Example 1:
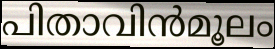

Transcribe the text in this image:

പിതാവിൻമൂലം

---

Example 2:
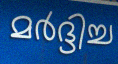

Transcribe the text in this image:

മർദ്ദിച്ച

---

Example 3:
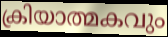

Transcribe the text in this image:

ക്രിയാത്മകവും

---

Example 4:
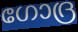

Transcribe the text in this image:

ഗോദ്ര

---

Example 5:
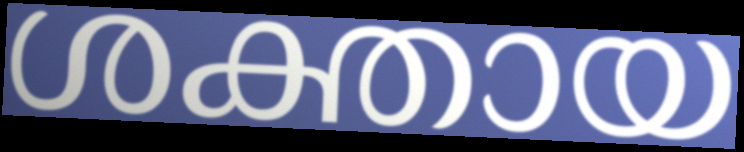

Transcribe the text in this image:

ശക്തായ